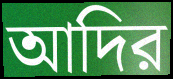
আদির